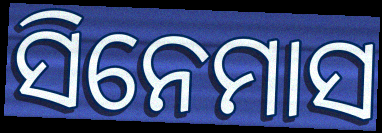
ସିନେମାସ